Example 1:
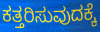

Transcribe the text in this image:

ಕತ್ತರಿಸುವುದಕ್ಕೆ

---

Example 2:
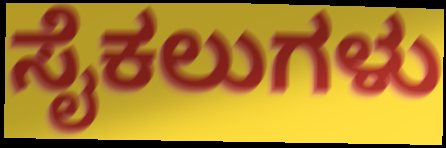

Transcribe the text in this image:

ಸೈಕಲುಗಳು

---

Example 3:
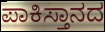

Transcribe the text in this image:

ಪಾಕಿಸ್ತಾನದ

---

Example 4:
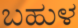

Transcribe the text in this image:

ಬಹುಳ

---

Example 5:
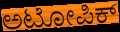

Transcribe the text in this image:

ಅಟೋಪಿಕ್